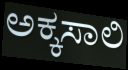
ಅಕ್ಕಸಾಲಿ